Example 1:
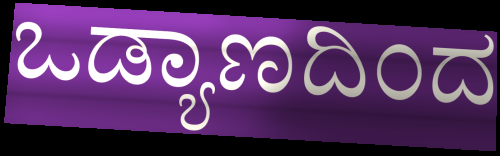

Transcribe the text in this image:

ಒಡ್ಯಾಣದಿಂದ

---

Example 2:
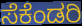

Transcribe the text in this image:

ಸೆಕೆಂಡರಿ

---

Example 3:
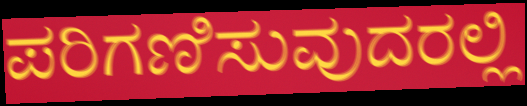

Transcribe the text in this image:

ಪರಿಗಣಿಸುವುದರಲ್ಲಿ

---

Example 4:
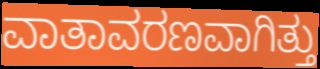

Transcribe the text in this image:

ವಾತಾವರಣವಾಗಿತ್ತು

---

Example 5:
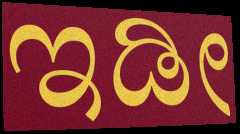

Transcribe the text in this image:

ಇಡೀ